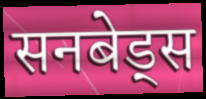
सनबेड्स